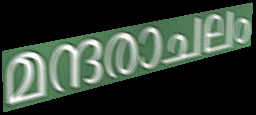
മന്ദരാചലം